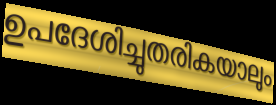
ഉപദേശിച്ചുതരികയാലും